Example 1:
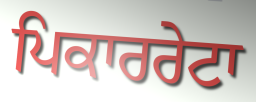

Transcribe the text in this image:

ਪਿਕਾਰਰੇਟਾ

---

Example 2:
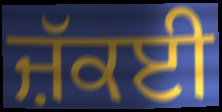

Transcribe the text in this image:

ਜ਼ੱਕਈ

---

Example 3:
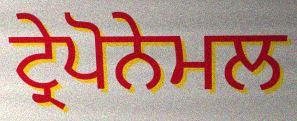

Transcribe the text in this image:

ਟ੍ਰੇਪੋਨੇਮਲ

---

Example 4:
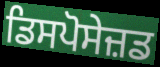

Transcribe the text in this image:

ਡਿਸਪੋਸੇਜ਼ਡ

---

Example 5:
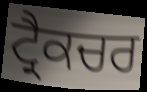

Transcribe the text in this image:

ਟ੍ਰੈਕਚਰ